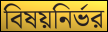
বিষয়নির্ভর